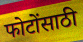
फोटोंसाठी